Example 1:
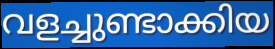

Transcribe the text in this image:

വളച്ചുണ്ടാക്കിയ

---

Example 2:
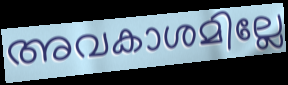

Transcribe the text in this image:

അവകാശമില്ലേ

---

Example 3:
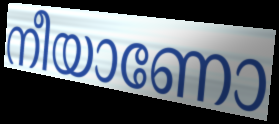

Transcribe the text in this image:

നീയാണോ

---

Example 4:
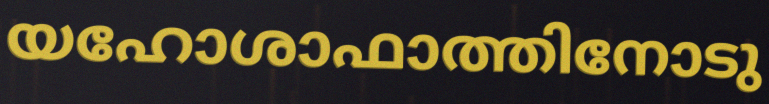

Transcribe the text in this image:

യഹോശാഫാത്തിനോടു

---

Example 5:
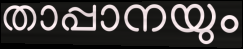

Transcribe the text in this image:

താപ്പാനയും